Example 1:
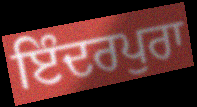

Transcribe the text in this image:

ਇੰਦਰਪੁਰਾ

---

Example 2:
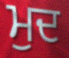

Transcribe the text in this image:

ਮੁਦ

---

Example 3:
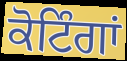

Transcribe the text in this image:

ਕੋਟਿੰਗਾਂ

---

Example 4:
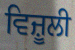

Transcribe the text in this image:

ਵਿਜ਼ੂਲੀ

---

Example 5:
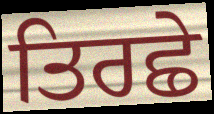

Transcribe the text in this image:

ਤਿਰਛੇ